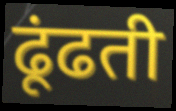
ढूंढती